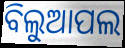
ବିଲୁଆପଲ